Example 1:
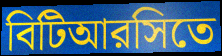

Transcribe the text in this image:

বিটিআরসিতে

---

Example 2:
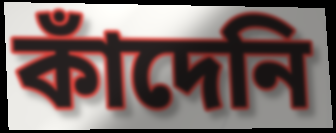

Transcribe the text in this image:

কাঁদেনি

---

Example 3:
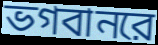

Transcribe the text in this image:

ভগবানরে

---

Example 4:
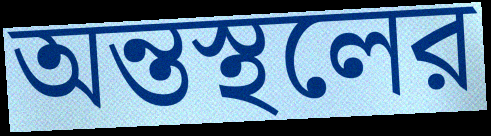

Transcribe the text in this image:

অন্তস্থলের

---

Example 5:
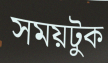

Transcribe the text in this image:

সময়টুক